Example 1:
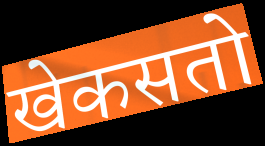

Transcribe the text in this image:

खेकसतो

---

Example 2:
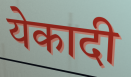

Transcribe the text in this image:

येकादी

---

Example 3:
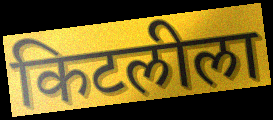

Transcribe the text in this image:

किटलीला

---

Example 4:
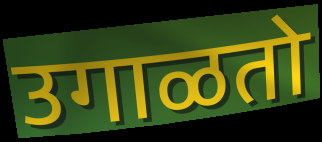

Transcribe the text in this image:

उगाळतो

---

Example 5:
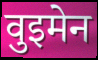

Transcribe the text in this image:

वुइमेन